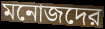
মনোজদের